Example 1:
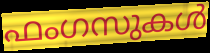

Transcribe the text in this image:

ഫംഗസുകൾ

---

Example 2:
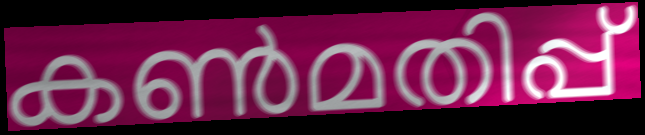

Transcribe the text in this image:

കൺമതിപ്പ്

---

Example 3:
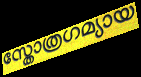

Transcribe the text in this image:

സ്തോത്രഗമ്യായ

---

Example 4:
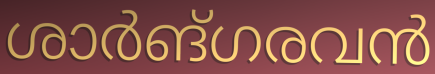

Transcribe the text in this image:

ശാർങ്ഗരവൻ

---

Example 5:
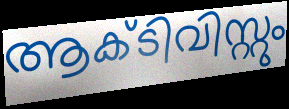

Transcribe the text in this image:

ആക്ടിവിസ്റ്റും